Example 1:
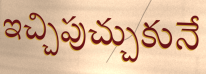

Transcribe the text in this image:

ఇచ్చిపుచ్చుకునే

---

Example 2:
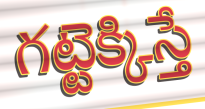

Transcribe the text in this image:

గట్టెక్కిస్తే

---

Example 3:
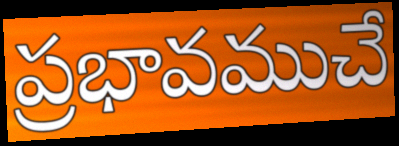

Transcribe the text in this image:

ప్రభావముచే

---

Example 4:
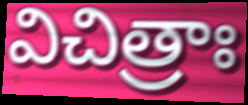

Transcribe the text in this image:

విచిత్రాః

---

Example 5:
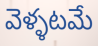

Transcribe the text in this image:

వెళ్ళటమే